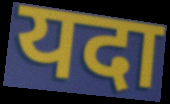
यदा